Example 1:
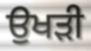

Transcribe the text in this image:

ਉਖੜੀ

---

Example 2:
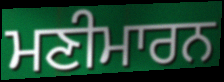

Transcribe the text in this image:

ਮਣੀਮਾਰਨ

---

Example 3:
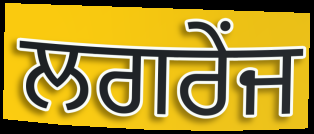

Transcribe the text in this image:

ਲਗਰੇਂਜ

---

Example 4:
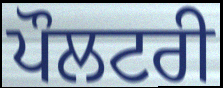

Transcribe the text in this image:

ਪੌਲਟਰੀ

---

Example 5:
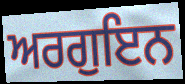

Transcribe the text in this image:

ਅਰਗੁਇਨ